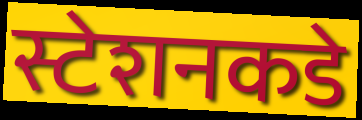
स्टेशनकडे